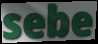
sebe